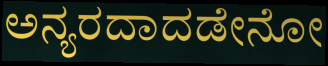
ಅನ್ಯರದಾದಡೇನೋ